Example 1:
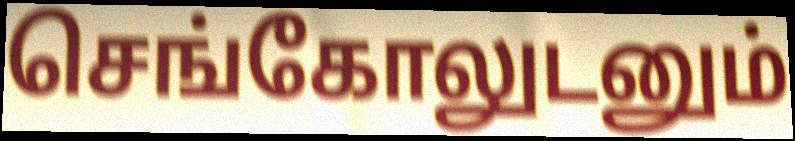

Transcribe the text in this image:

செங்கோலுடனும்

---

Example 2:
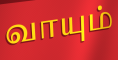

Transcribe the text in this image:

வாயும்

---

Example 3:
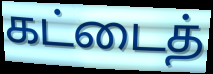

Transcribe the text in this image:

கட்டைத்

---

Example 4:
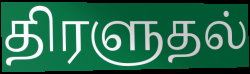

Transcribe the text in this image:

திரளுதல்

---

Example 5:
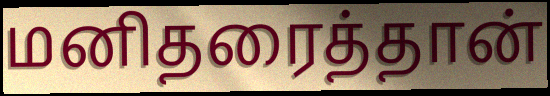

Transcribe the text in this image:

மனிதரைத்தான்